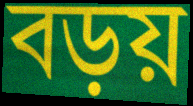
বড়য়